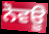
ਨੋਵਊ